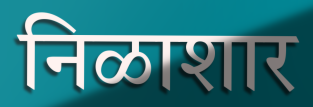
निळाशार